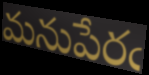
మనుపేరఁ